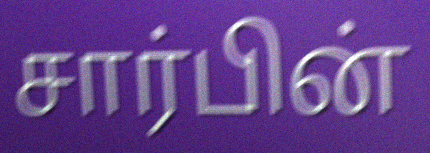
சார்பின்